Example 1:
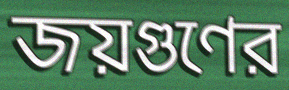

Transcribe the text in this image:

জয়গুণের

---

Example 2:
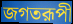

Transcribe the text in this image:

জগতরূপী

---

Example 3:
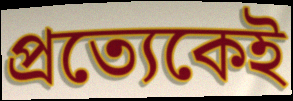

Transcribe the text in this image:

প্রত্যেকেই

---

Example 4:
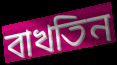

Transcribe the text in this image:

বাখতিন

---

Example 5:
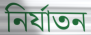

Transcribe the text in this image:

নির্যাতন